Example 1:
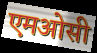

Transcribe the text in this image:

एमओसी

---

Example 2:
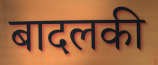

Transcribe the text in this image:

बादलकी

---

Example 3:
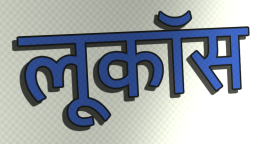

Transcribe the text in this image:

लूकॉस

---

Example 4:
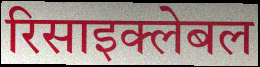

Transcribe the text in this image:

रिसाइक्लेबल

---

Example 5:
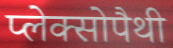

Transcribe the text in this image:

प्लेक्सोपैथी